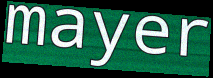
mayer